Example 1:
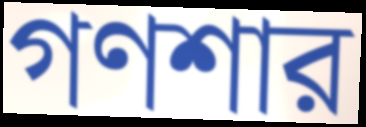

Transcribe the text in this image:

গণশার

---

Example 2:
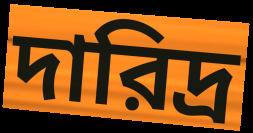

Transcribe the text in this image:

দারিদ্র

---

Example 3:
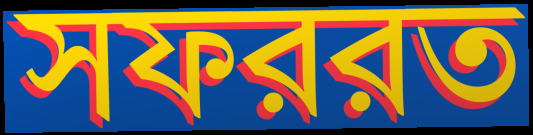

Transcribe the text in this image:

সফররত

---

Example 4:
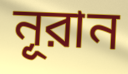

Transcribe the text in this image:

নূরান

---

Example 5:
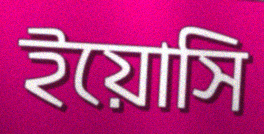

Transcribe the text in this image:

ইয়োসি